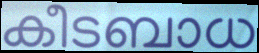
കീടബാധ